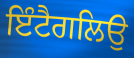
ਇੰਟੈਗਲਿਉ